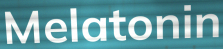
Melatonin